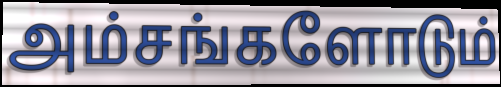
அம்சங்களோடும்